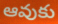
ఆవుకు